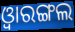
ଓ୍ବାରଙ୍ଗଲ